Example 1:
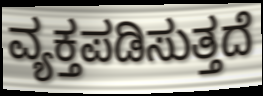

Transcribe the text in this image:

ವ್ಯಕ್ತಪಡಿಸುತ್ತದೆ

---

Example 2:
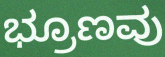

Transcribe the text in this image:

ಭ್ರೂಣವು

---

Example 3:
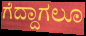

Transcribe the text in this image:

ಗೆದ್ದಾಗಲೂ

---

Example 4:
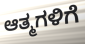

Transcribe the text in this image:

ಆತ್ಮಗಳಿಗೆ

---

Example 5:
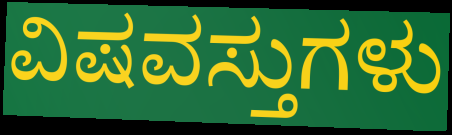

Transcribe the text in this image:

ವಿಷವಸ್ತುಗಳು